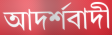
আদর্শবাদী